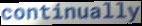
continually